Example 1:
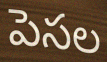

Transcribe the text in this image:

పెసల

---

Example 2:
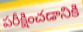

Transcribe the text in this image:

పరీక్షించడానికి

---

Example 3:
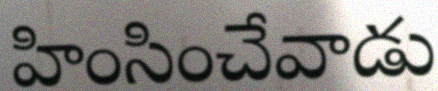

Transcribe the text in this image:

హింసించేవాడు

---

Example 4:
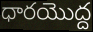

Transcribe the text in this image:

ధారయొద్ద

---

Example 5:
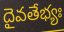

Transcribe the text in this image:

దైవతేభ్యః